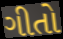
ગીતો